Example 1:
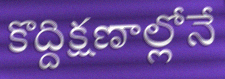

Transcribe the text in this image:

కొద్దిక్షణాల్లోనే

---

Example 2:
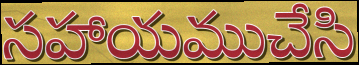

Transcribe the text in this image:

సహాయముచేసి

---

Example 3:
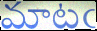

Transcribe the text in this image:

మాటఁ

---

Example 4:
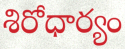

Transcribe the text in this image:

శిరోధార్యం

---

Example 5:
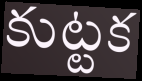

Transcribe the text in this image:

కుట్టక